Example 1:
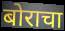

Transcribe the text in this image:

बोराचा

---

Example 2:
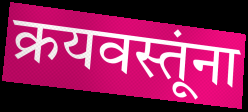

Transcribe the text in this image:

क्रयवस्तूंना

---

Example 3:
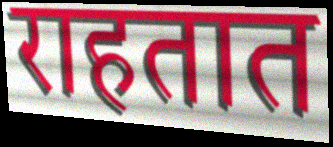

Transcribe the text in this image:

राहतात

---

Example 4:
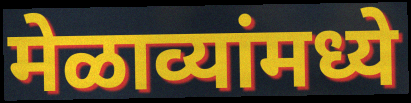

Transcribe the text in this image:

मेळाव्यांमध्ये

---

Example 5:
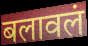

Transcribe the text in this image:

बलावलं